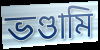
ভণ্ডামি